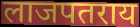
लाजपतराय